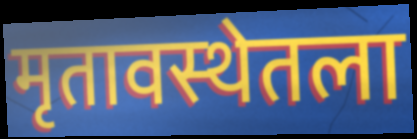
मृतावस्थेतला